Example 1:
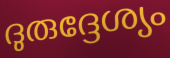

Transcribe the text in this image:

ദുരുദ്ദേശ്യം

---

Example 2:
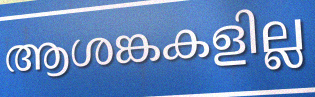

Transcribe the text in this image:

ആശങ്കകളില്ല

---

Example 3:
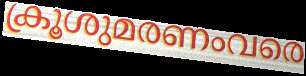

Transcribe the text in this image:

ക്രൂശുമരണംവരെ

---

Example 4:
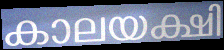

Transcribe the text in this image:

കാലയക്ഷി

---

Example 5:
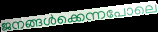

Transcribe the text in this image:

ജനങ്ങൾക്കെന്നപോലെ